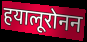
हयालूरोनन